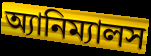
অ্যানিম্যালস